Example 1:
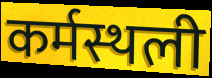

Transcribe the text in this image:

कर्मस्थली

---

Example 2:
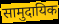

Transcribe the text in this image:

सामुदायिक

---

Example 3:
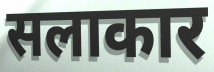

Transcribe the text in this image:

सलाकार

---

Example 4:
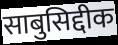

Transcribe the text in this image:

साबुसिद्दीक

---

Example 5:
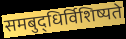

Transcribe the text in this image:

समबुद्धिर्विशिष्यते